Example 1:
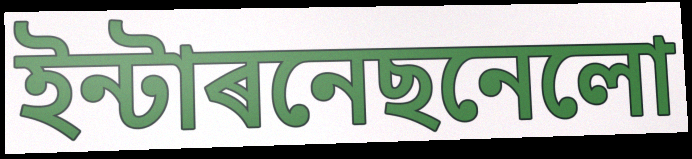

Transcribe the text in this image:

ইন্টাৰনেছনেলো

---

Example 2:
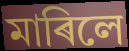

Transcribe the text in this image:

মাৰিলে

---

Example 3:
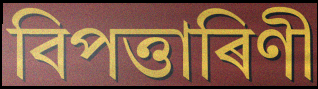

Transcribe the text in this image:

বিপত্তাৰিণী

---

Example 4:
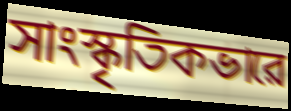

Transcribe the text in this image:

সাংস্কৃতিকভাৱে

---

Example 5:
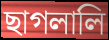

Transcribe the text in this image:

ছাগলালি